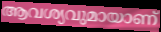
ആവശ്യവുമായാണ്